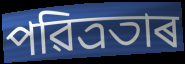
পৱিত্ৰতাৰ